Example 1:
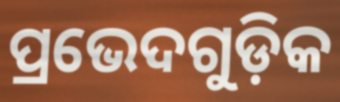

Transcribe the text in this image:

ପ୍ରଭେଦଗୁଡ଼ିକ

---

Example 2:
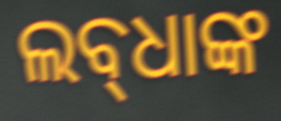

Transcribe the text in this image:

ଲବ୍‌ଧାଙ୍କ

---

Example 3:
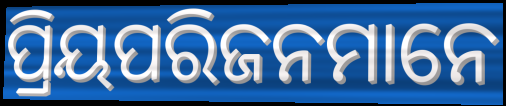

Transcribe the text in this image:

ପ୍ରିୟପରିଜନମାନେ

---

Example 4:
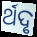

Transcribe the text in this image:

ର୍ଥଦୃ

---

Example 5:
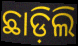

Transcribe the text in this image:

ଛାଡ଼ିଲି